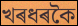
খৰধৰকৈ